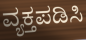
ವ್ಯಕ್ತಪಡಿಸಿ